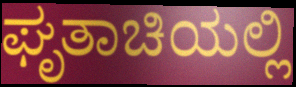
ಘೃತಾಚಿಯಲ್ಲಿ